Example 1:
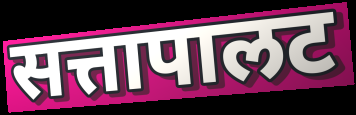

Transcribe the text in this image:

सत्तापालट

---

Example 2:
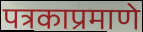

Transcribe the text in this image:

पत्रकाप्रमाणे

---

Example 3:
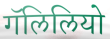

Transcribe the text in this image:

गॅलिलियो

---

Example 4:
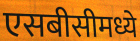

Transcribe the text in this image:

एसबीसीमध्ये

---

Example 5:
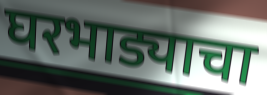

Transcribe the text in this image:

घरभाड्याचा